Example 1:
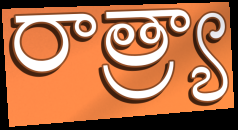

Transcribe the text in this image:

రాత్ర్యా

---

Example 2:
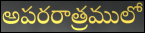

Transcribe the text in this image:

అపరరాత్రములో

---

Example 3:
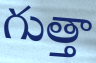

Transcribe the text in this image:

గుత్తా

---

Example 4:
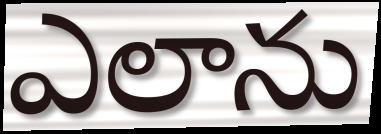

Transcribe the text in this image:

ఎలాను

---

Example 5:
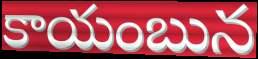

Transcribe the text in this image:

కాయంబున